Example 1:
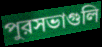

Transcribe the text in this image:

পুরসভাগুলি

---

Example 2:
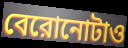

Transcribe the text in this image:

বেরোনোটাও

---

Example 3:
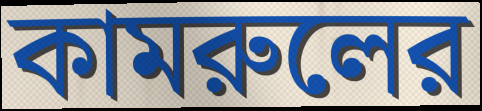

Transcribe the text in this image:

কামরুলের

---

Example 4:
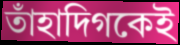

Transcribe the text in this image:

তাঁহাদিগকেই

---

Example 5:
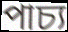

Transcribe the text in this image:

পাচ্য